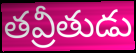
తవ్రీతుడు